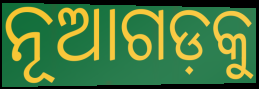
ନୂଆଗଡ଼କୁ